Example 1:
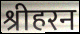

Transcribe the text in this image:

श्रीहरन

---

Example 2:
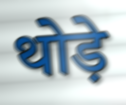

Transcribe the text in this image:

थोड़े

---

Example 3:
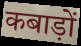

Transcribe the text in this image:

कबाड़ों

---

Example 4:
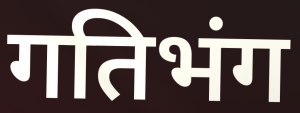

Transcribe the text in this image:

गतिभंग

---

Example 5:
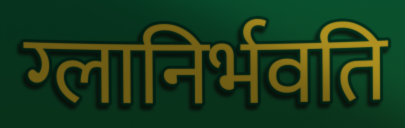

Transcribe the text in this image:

ग्लानिर्भवति